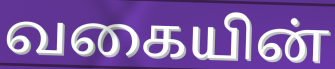
வகையின்